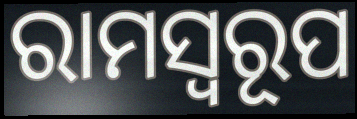
ରାମସ୍ୱରୂପ